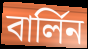
বাৰ্লিন